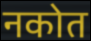
नकोत